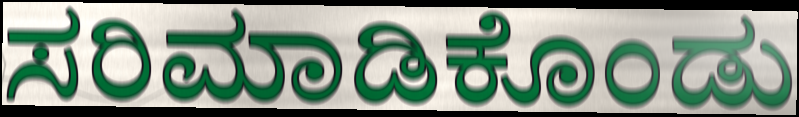
ಸರಿಮಾಡಿಕೊಂಡು